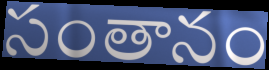
సంతానం